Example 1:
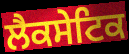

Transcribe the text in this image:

ਲੈਕਸੇਟਿਕ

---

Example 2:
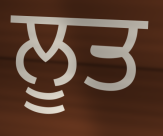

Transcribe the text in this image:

ਲੂਤ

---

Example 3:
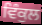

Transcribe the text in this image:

ਵਿੰਕੁਲ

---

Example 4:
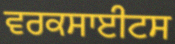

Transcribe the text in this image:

ਵਰਕਸਾਈਟਸ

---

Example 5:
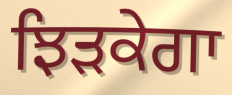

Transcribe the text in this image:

ਝਿੜਕੇਗਾ